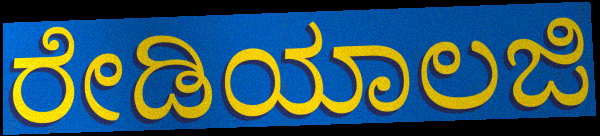
ರೇಡಿಯಾಲಜಿ